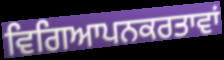
ਵਿਗਿਆਪਨਕਰਤਾਵਾਂ